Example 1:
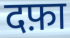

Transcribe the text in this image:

दफ़ा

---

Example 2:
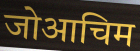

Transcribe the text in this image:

जोआचिम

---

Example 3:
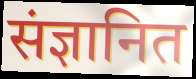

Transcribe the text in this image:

संज्ञानित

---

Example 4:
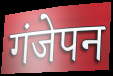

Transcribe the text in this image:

गंजेपन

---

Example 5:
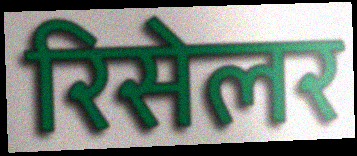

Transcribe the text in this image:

रिसेलर